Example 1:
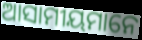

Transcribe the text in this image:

ଆସାମୀୟମାନେ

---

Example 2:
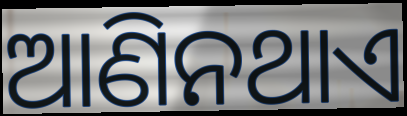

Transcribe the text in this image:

ଆଣିନଥାଏ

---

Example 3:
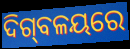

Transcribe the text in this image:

ଦିଗ୍‍ବଳୟରେ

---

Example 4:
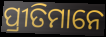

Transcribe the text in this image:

ପ୍ରୀତିମାନେ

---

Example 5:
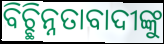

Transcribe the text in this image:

ବିଚ୍ଛିନ୍ନତାବାଦୀଙ୍କୁ